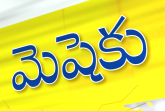
మెషెకు